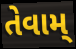
તેવામ્